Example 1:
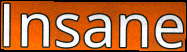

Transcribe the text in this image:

Insane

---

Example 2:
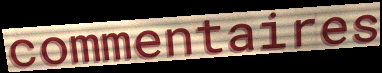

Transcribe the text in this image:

commentaires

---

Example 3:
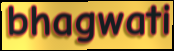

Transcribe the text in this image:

bhagwati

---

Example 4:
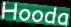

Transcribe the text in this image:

Hooda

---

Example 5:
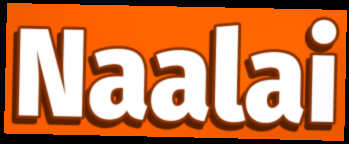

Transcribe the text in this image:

Naalai